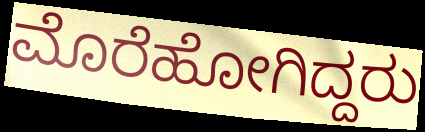
ಮೊರೆಹೋಗಿದ್ದರು